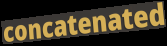
concatenated